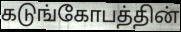
கடுங்கோபத்தின்